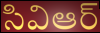
సివిఆర్